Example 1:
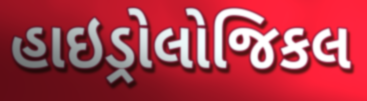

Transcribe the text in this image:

હાઇડ્રોલોજિકલ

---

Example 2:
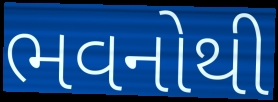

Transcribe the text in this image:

ભવનોથી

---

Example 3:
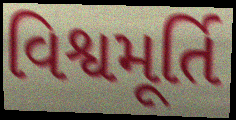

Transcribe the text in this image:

વિશ્વમૂર્તિ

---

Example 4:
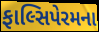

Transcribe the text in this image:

ફાલ્સિપેરમના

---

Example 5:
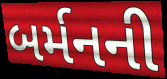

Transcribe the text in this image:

બર્મનની